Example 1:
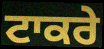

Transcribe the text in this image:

ਟਾਕਰੇ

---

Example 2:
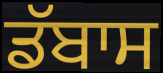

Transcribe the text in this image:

ਡੱਬਾਸ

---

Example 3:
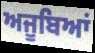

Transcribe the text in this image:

ਅਜੂਬਿਆਂ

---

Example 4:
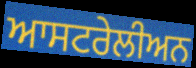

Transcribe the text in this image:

ਆਸਟਰੇਲੀਅਨ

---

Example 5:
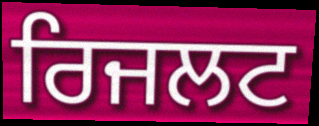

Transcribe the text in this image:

ਰਿਜਲਟ